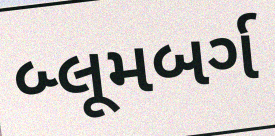
બ્લૂમબર્ગ